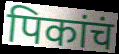
पिकांचं